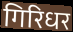
गिरिधर